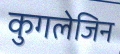
कुगलेजिन